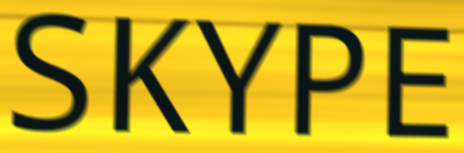
SKYPE